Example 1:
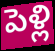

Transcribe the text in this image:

పెళ్లి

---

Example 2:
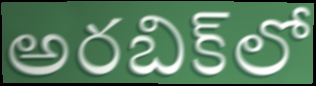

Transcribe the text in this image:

అరబిక్‌లో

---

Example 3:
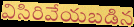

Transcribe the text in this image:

విసిరివేయబడిన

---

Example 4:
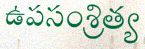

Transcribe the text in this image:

ఉపసంశ్రిత్య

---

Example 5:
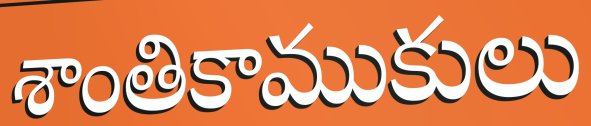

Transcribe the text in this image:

శాంతికాముకులు